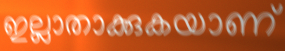
ഇല്ലാതാക്കുകയാണ്